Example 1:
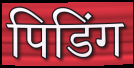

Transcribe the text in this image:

पिडिंग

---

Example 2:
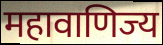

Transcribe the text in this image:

महावाणिज्‍य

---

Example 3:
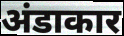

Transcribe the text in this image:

अंडाकार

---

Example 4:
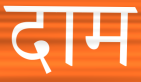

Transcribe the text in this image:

दाम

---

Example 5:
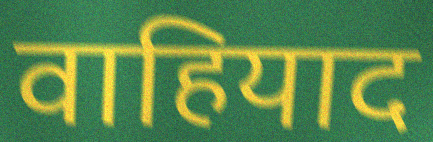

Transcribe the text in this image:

वाहियाद